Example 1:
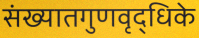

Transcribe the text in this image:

संख्यातगुणवृद्धिके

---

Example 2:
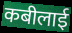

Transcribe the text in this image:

कबीलाई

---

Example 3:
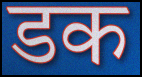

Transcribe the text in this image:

डक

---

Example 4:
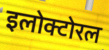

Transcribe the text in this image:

इलोक्टोरल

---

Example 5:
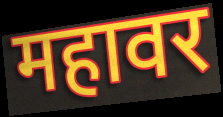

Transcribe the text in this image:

महावर